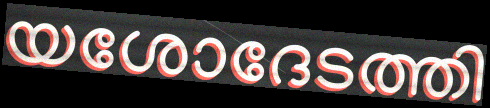
യശോദേടത്തി